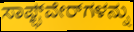
ಸಾಫ್ಟ್‌ವೇರ್‌ಗಳನ್ನು